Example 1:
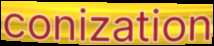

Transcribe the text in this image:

conization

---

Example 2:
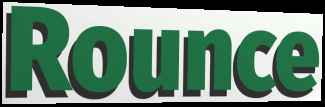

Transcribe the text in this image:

Rounce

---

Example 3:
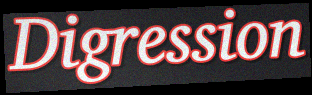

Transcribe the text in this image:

Digression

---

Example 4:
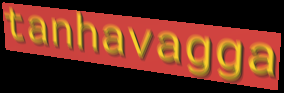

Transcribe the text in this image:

tanhavagga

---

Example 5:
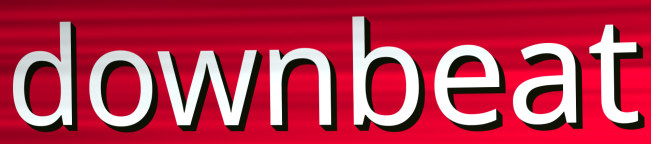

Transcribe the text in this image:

downbeat